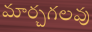
మార్చగలవు